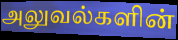
அலுவல்களின்